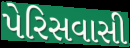
પેરિસવાસી